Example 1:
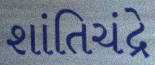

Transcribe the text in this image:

શાંતિચંદ્રે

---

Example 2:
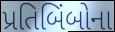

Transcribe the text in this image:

પ્રતિબિંબોના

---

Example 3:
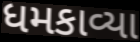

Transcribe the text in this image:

ધમકાવ્યા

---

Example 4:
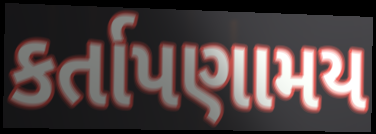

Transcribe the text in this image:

કર્તાપણામય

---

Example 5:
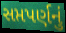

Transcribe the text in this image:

સપ્તપર્ણનું